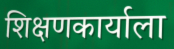
शिक्षणकार्याला